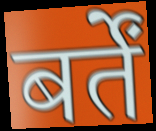
बर्तें